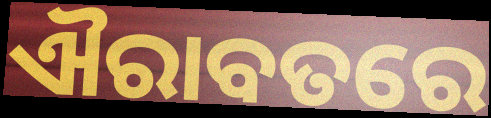
ଐରାବତରେ